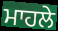
ਮਾਹਲੇ